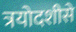
त्रयोदशीसे